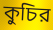
কুচির